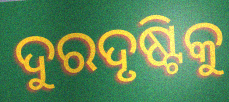
ଦୁରଦୃଷ୍ଟିକୁ